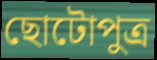
ছোটোপুত্র